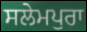
ਸਲੇਮਪੁਰਾ